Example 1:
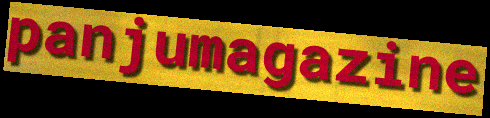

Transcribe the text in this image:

panjumagazine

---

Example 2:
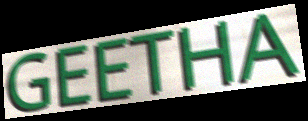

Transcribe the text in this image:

GEETHA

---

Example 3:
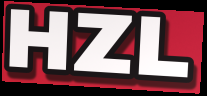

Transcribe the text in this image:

HZL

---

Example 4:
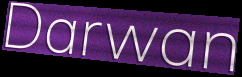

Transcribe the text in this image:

Darwan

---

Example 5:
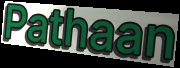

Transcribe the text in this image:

Pathaan